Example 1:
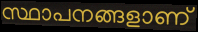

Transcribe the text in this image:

സ്ഥാപനങ്ങളാണ്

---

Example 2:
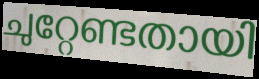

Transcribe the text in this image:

ചുറ്റേണ്ടതായി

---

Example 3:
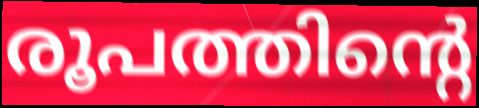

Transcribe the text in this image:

രൂപത്തിന്റെ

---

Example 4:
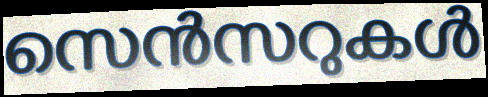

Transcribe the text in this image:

സെൻസറുകൾ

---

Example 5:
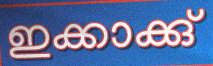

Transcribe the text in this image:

ഇക്കാക്കു്